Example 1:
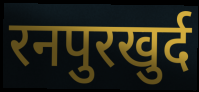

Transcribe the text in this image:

रनपुरखुर्द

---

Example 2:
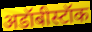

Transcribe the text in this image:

अडॉबीस्टॉक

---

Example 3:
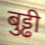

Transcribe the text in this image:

बुड्ढी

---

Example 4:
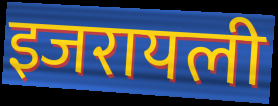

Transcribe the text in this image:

इजरायली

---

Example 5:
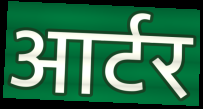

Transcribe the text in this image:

आर्टर